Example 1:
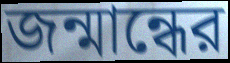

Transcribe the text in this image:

জন্মান্ধের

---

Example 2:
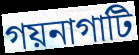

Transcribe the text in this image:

গয়নাগাটি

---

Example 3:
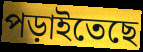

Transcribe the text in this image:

পড়াইতেছে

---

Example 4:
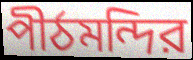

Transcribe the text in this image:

পীঠমন্দির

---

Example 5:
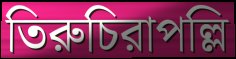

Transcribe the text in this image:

তিরুচিরাপল্লি